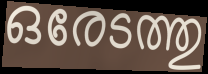
ഒരേടത്തു